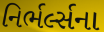
નિર્ભર્લ્સના